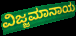
ವಿಜ್ಜಮಾನಾಯ